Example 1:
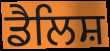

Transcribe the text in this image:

ਡੈਲਿਸ਼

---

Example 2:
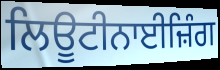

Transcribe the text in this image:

ਲਿਊਟੀਨਾਈਜ਼ਿੰਗ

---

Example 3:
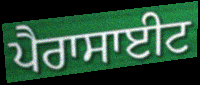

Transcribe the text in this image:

ਪੈਰਾਸਾਈਟ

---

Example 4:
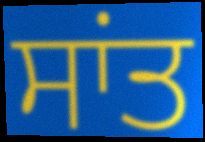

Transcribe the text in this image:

ਸਾਂਤ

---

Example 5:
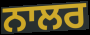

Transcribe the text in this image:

ਨਾਲਰ